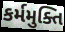
કર્મમુક્તિ